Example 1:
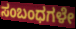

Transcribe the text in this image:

ಸಂಬಂಧಗಳೇ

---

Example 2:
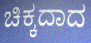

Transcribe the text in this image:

ಚಿಕ್ಕದಾದ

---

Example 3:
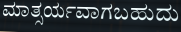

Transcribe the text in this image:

ಮಾತ್ಸರ್ಯವಾಗಬಹುದು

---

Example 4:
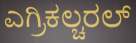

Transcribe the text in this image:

ಎಗ್ರಿಕಲ್ಚರಲ್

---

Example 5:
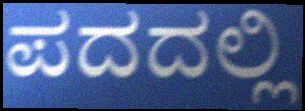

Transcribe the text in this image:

ಪದದಲ್ಲಿ